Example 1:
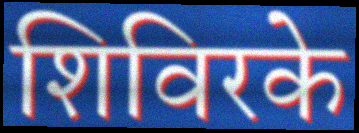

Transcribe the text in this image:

शिविरके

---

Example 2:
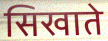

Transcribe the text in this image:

सिखाते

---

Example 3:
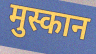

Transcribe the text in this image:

मुस्कान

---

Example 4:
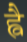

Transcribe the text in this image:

ह्वै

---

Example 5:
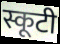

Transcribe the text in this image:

स्कूटी